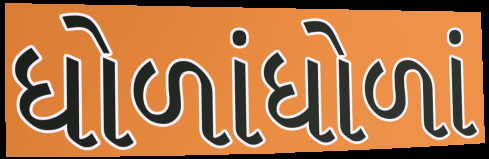
ધોળાંધોળાં